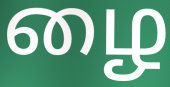
ழை